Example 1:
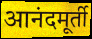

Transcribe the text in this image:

आनंदमूर्ती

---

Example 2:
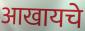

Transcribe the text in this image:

आखायचे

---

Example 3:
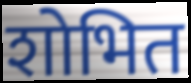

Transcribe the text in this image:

शोभित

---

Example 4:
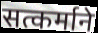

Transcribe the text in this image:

सत्कर्माने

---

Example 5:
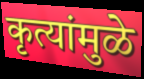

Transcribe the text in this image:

कृत्यांमुळे